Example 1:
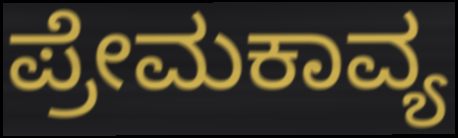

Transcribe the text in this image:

ಪ್ರೇಮಕಾವ್ಯ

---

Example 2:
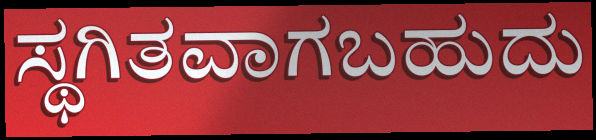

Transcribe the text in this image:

ಸ್ಥಗಿತವಾಗಬಹುದು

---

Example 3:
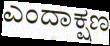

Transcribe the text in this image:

ಎಂದಾಕ್ಷಣ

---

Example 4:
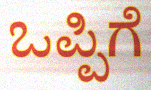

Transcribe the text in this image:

ಒಪ್ಪಿಗೆ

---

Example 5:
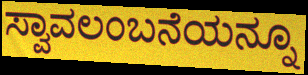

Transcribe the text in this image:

ಸ್ವಾವಲಂಬನೆಯನ್ನೂ